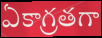
ఏకాగ్రతగా